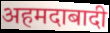
अहमदाबादी